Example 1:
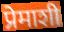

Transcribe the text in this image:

प्रेमाशी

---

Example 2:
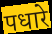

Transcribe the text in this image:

पधारे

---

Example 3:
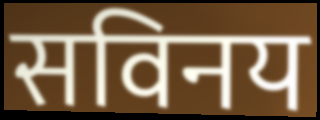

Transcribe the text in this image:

सविनय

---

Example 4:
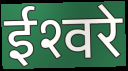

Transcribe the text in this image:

ईश्वरे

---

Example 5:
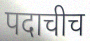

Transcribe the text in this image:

पदाचीच